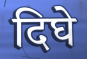
दिघे